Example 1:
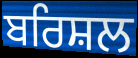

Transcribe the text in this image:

ਬਰਿਸ਼ਲ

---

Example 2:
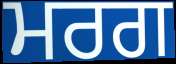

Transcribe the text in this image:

ਮਰਗ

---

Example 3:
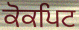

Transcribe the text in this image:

ਕੋਕਪਿਟ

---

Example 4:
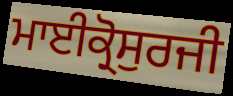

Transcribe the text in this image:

ਮਾਈਕ੍ਰੋਸੁਰਜੀ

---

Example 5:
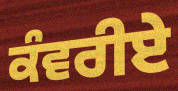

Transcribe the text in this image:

ਕੰਵਰੀਏ